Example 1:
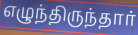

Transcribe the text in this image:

எழுந்திருந்தார்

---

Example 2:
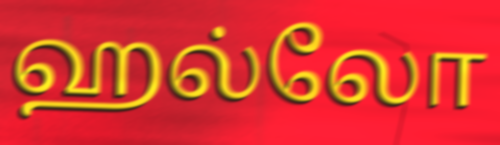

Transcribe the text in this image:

ஹல்லோ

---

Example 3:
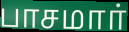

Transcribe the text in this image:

பாசமார்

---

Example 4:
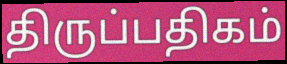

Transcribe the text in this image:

திருப்பதிகம்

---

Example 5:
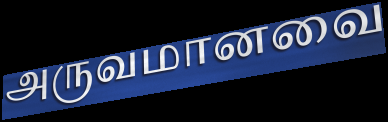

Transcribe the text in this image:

அருவமானவை